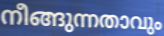
നീങ്ങുന്നതാവും